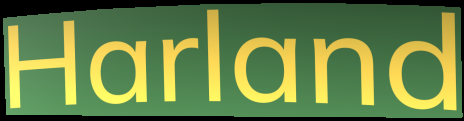
Harland